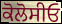
ਕੋਲੋਸੀਓ